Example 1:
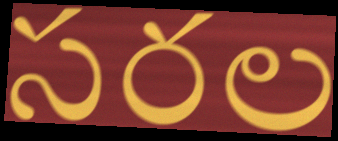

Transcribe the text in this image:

సరల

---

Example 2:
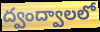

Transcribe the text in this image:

ద్వంద్వాలలో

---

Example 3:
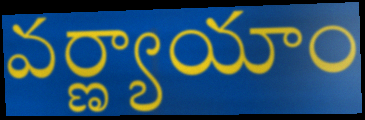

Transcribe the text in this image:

వర్ణ్యాయాం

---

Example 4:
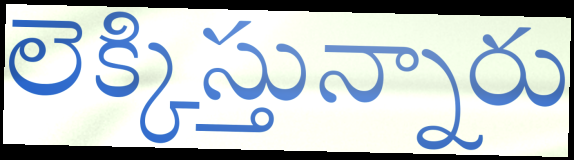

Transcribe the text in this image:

లెక్కిస్తున్నారు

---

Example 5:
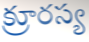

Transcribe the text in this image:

క్రూరస్య